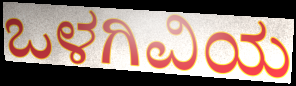
ಒಳಗಿವಿಯ